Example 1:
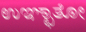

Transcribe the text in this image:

ಉಞ್ಛಾತೋ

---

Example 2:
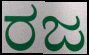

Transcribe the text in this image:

ರಜ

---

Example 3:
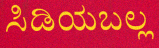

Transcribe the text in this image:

ಸಿಡಿಯಬಲ್ಲ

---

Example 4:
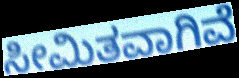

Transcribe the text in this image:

ಸೀಮಿತವಾಗಿವೆ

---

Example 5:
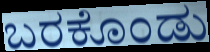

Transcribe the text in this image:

ಬರಕೊಂಡು